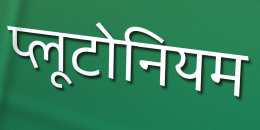
प्लूटोनियम